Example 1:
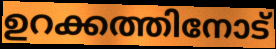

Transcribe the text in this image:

ഉറക്കത്തിനോട്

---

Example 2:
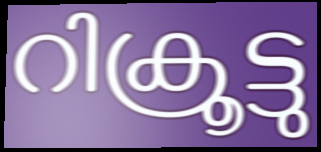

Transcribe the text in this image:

റിക്രൂട്ടു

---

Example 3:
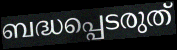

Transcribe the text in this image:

ബദ്ധപ്പെടരുത്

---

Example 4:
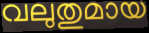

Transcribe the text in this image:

വലുതുമായ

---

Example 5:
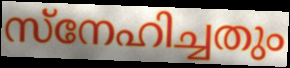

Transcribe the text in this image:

സ്നേഹിച്ചതും